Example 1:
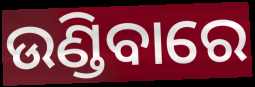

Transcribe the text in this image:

ଉଣ୍ଡିବାରେ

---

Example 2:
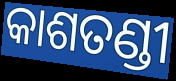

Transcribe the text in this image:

କାଶତଣ୍ଡୀ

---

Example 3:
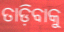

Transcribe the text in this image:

ତାଡ଼ିବାକୁ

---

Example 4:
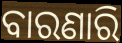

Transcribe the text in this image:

ବାରଣାରି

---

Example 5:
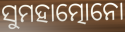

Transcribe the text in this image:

ସୁମହାତ୍ମୋନୋ